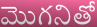
మొగనితో